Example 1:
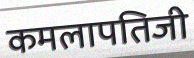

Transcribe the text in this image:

कमलापतिजी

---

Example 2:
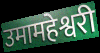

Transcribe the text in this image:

उमामहेश्वरी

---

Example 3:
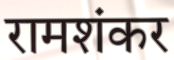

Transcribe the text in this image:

रामशंकर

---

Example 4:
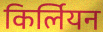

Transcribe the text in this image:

किर्लियन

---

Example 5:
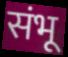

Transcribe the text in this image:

संभू